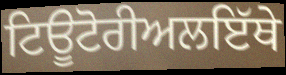
ਟਿਊਟੋਰੀਅਲਇੱਥੇ